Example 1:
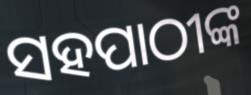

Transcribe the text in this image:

ସହପାଠୀଙ୍କ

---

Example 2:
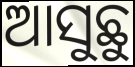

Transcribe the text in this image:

ଆସୁଛୁ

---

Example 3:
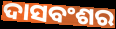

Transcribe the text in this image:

ଦାସବଂଶର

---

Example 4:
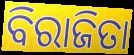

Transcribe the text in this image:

ବିରାଜିତା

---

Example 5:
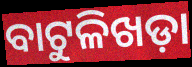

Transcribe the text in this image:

ବାଟୁଳିଖଡ଼ା